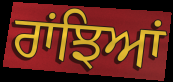
ਰਾਂਝਿਆਂ